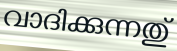
വാദിക്കുന്നതു്